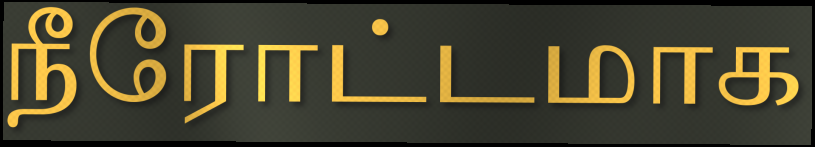
நீரோட்டமாக